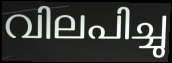
വിലപിച്ചു